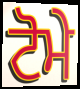
ਟੋਮੇ